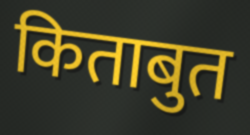
किताबुत